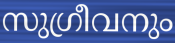
സുഗ്രീവനും